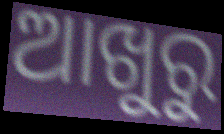
ଆଖୁରୁ